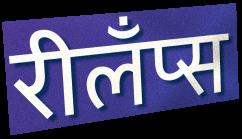
रीलँप्स